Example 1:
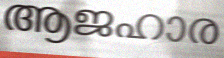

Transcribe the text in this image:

ആജഹാര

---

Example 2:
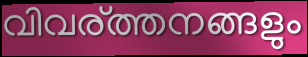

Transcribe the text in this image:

വിവര്ത്തനങ്ങളും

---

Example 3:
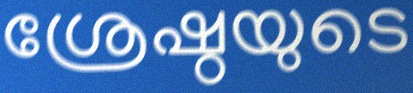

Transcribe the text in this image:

ശ്രേഷ്ഠയുടെ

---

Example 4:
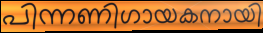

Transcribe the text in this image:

പിന്നണിഗായകനായി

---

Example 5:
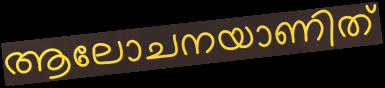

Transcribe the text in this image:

ആലോചനയാണിത്